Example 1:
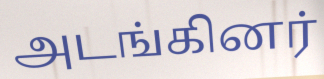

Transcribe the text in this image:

அடங்கினர்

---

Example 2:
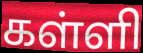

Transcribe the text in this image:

கள்ளி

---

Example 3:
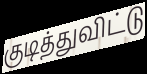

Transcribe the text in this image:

குடித்துவிட்டு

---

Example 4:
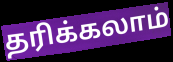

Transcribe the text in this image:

தரிக்கலாம்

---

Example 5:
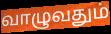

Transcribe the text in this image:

வாழுவதும்